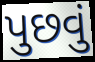
પુછવું